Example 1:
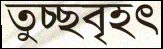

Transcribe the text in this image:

তুচ্ছবৃহৎ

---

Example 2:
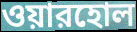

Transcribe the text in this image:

ওয়ারহোল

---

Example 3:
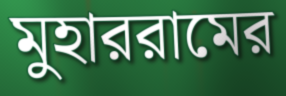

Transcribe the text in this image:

মুহাররামের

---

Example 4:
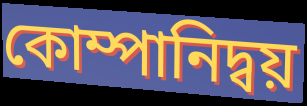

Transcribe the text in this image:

কোম্পানিদ্বয়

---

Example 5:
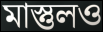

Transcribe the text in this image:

মাস্তুলও